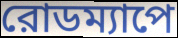
রোডম্যাপে